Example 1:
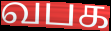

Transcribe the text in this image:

வபக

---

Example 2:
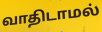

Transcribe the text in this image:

வாதிடாமல்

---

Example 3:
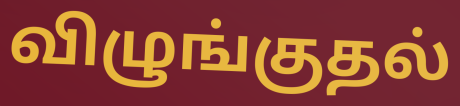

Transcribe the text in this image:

விழுங்குதல்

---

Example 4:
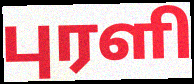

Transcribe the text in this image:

புரளி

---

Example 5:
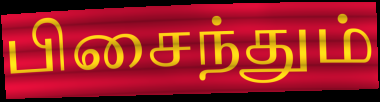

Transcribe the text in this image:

பிசைந்தும்